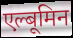
एल्बूमिन